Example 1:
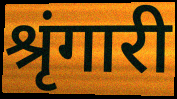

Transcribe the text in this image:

श्रृंगारी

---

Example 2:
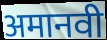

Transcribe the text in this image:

अमानवी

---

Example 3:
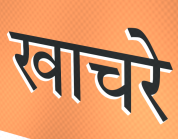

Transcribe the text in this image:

खाचरे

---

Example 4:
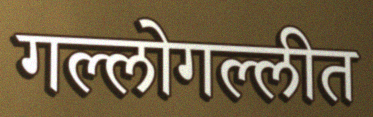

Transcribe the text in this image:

गल्लोगल्लीत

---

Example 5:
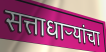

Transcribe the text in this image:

सत्ताधाऱ्यांचा